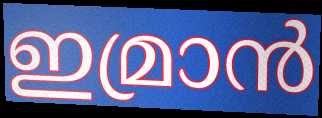
ഇമ്രാൻ